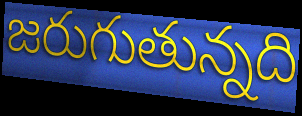
జరుగుతున్నది